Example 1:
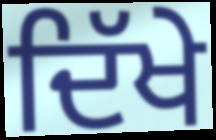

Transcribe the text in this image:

ਦਿੱਖੇ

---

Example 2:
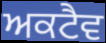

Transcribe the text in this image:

ਅਕਟੈਵ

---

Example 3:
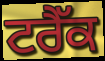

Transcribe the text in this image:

ਟਰੈੱਕ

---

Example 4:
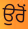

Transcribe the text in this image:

ਉਰੋਂ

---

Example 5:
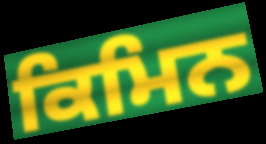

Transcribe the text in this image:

ਕਿਮਿਨ